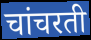
चांचरती